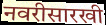
नवरीसारखी